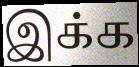
இக்க